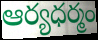
ఆర్యధర్మం